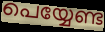
പെയ്യേണ്ട